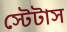
স্টেটাস